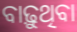
ବାଢ଼ୁଥିବା